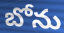
బోను